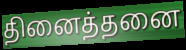
தினைத்தனை